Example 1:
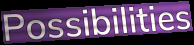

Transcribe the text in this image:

Possibilities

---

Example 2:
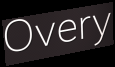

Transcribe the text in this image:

Overy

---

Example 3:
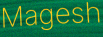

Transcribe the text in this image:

Magesh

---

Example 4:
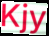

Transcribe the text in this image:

Kjy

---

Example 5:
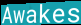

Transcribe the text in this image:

Awakes